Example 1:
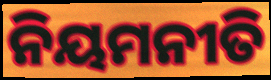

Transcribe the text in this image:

ନିୟମନୀତି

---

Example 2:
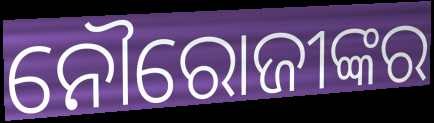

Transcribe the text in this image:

ନୌରୋଜୀଙ୍କର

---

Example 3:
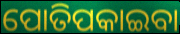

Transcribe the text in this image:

ପୋତିପକାଇବା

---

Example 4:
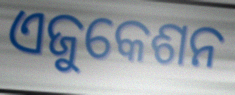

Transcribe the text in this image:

ଏଜୁକେଶନ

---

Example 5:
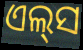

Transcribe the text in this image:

ଏଲ୍‌ସ